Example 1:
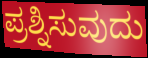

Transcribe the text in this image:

ಪ್ರಶ್ನಿಸುವುದು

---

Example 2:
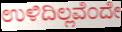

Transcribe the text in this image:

ಉಳಿದಿಲ್ಲವೆಂದೇ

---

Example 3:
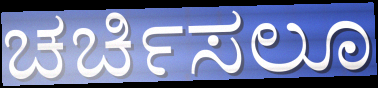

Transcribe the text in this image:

ಚರ್ಚಿಸಲೂ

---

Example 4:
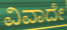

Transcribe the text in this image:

ವಿವಾದೇ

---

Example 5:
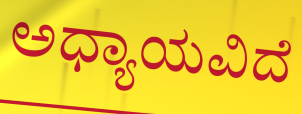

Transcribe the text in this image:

ಅಧ್ಯಾಯವಿದೆ